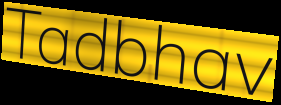
Tadbhav